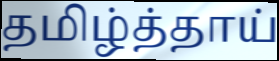
தமிழ்த்தாய்